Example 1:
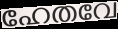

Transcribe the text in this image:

ഹേതവേ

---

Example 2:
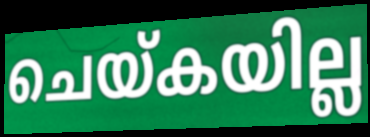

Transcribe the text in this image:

ചെയ്കയില്ല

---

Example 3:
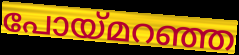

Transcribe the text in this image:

പോയ്മറഞ്ഞ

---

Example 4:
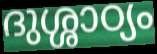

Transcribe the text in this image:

ദുശ്ശാഠ്യം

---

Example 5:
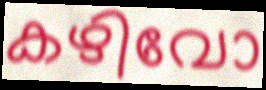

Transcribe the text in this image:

കഴിവോ